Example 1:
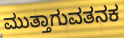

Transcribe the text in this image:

ಮುತ್ತಾಗುವತನಕ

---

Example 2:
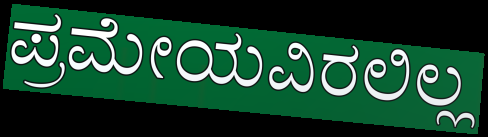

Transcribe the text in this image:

ಪ್ರಮೇಯವಿರಲಿಲ್ಲ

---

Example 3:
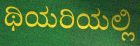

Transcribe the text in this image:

ಥಿಯರಿಯಲ್ಲಿ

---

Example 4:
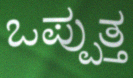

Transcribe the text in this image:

ಒಪ್ಪುತ್ತ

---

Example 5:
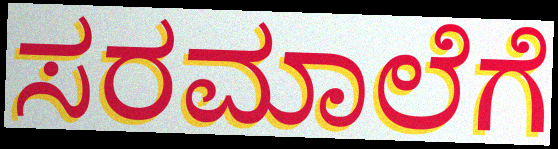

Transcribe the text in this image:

ಸರಮಾಲೆಗೆ